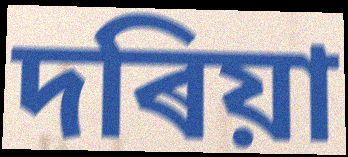
দৰিয়া